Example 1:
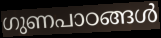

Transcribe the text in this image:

ഗുണപാഠങ്ങൾ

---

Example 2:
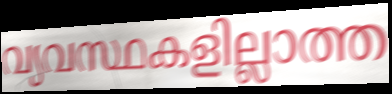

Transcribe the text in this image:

വ്യവസ്ഥകളില്ലാത്ത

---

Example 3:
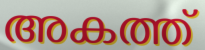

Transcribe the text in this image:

അകത്ത്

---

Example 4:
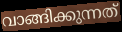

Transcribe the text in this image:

വാങ്ങിക്കുന്നത്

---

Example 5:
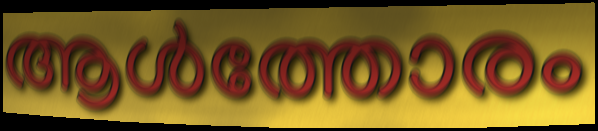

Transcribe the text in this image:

ആൾത്തോരം